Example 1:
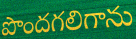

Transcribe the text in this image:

పొందగలిగాను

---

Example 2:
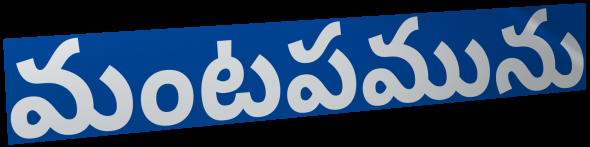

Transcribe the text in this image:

మంటపమును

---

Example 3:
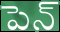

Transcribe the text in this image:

పెన్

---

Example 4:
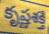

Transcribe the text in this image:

కృష్ణశక్తి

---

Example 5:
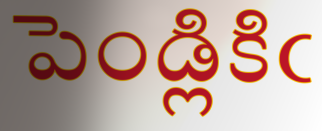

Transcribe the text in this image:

పెండ్లికిఁ